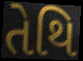
તેથિ